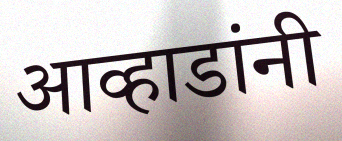
आव्हाडांनी